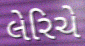
લેરિચે